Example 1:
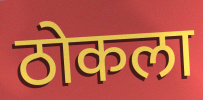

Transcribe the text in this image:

ठोकला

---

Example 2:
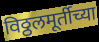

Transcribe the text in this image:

विठ्ठलमूर्तीच्या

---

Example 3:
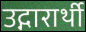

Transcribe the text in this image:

उद्गारार्थी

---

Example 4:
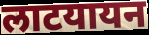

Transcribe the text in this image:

लाटयायन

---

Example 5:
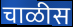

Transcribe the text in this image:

चाळीस